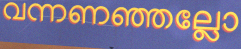
വന്നണഞ്ഞല്ലോ